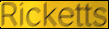
Ricketts